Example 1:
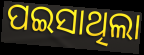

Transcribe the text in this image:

ପଇସାଥିଲା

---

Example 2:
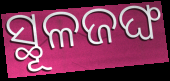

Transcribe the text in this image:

ସ୍ଥୂଳଜଙ୍ଘ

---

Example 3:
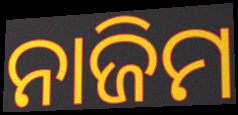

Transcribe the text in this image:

ନାଜିମ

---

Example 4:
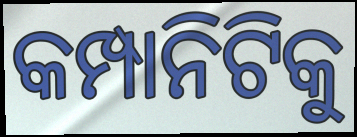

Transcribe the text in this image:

କମ୍ପାନିଟିକୁ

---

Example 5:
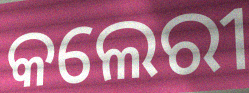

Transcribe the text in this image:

କଲେରୀ